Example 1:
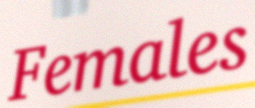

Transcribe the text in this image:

Females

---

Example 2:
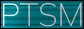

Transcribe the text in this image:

PTSM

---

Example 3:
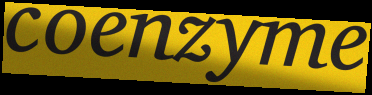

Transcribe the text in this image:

coenzyme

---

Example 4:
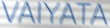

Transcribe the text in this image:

VAIYATA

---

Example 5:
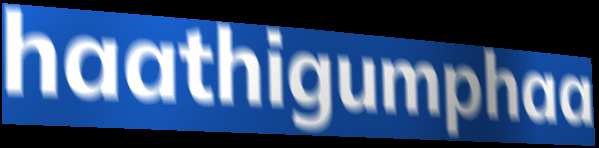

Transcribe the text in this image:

haathigumphaa